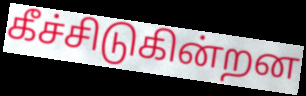
கீச்சிடுகின்றன